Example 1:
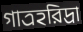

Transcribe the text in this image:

গাত্রহরিদ্রা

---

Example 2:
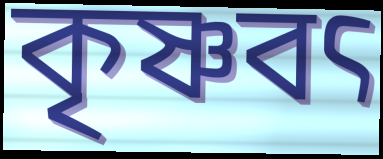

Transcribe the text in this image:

কৃষ্ণবৎ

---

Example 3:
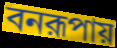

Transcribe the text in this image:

বনরূপায়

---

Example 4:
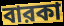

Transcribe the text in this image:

বারকা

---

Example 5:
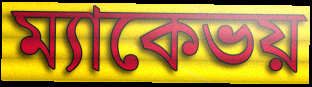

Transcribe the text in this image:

ম্যাকেভয়